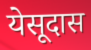
येसूदास